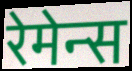
रेमेन्स